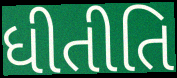
ધીતીતિ